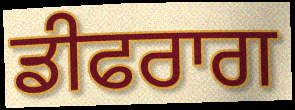
ਡੀਫਰਾਗ